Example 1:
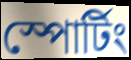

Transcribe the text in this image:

স্পোর্টিং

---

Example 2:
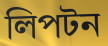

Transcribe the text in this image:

লিপটন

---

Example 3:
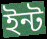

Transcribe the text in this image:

ইন্ট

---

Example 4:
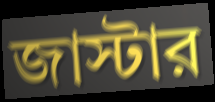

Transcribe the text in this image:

জাস্টার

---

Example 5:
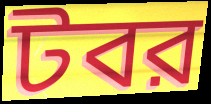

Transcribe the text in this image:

টবর